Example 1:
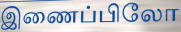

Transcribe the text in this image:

இணைப்பிலோ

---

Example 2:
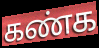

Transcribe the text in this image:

கண்க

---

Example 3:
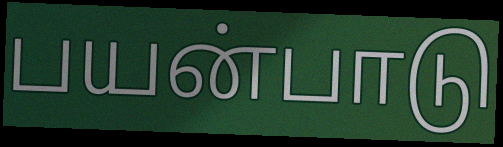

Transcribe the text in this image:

பயன்பாடு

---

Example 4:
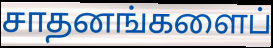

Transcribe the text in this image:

சாதனங்களைப்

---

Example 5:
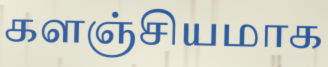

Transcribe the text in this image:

களஞ்சியமாக